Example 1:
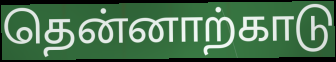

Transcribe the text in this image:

தென்னாற்காடு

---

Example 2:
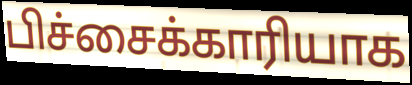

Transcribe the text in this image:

பிச்சைக்காரியாக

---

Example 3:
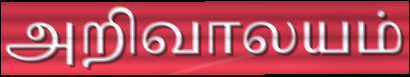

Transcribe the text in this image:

அறிவாலயம்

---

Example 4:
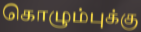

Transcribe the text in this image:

கொழும்புக்கு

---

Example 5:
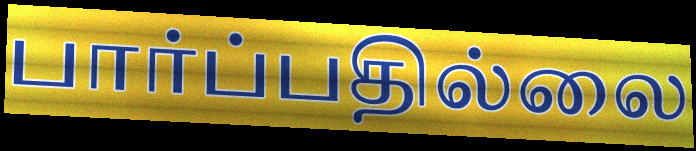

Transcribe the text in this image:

பார்ப்பதில்லை